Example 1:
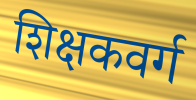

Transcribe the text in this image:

शिक्षकवर्ग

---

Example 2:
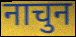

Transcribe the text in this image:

नाचुन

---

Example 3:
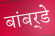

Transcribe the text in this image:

बांबर्डे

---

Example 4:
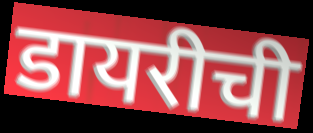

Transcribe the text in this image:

डायरीची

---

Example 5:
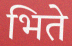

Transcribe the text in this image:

भिते